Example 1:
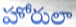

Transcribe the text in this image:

హోరులా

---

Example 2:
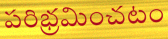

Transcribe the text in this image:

పరిభ్రమించటం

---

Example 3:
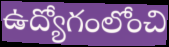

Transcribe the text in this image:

ఉద్యోగంలోంచి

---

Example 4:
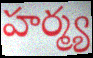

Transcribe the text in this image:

హర్మ్య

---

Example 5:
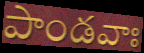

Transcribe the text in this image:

పాండవాః